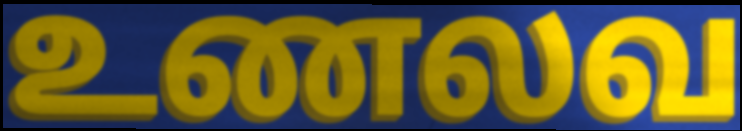
உணலவ